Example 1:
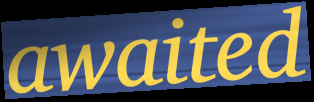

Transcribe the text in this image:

awaited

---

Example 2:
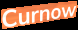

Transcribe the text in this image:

Curnow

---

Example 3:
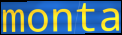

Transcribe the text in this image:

monta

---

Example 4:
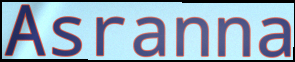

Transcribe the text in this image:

Asranna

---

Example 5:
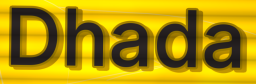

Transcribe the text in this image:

Dhada